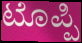
ಟೊಪ್ಪಿ